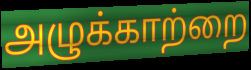
அழுக்காற்றை